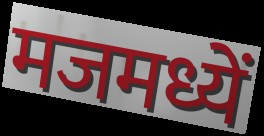
मजमध्यें